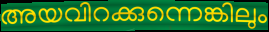
അയവിറക്കുന്നെങ്കിലും